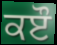
ਕੲੌ